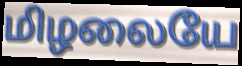
மிழலையே